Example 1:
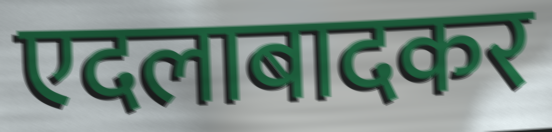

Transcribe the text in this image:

एदलाबादकर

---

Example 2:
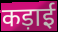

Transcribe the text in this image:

कड़ाई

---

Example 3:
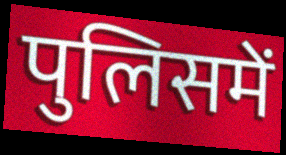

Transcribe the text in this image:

पुलिसमें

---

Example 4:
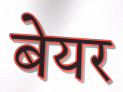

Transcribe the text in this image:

बेयर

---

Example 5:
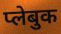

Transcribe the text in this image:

प्लेबुक